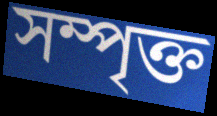
সম্পৃক্ত